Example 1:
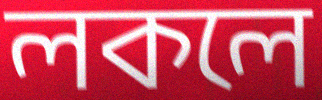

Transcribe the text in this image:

লকলে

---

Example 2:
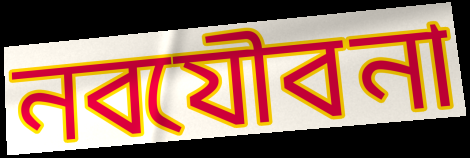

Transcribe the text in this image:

নবযৌবনা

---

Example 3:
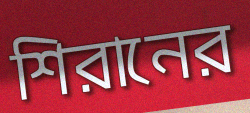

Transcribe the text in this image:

শিরানের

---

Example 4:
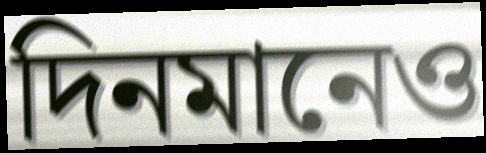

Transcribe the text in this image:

দিনমানেও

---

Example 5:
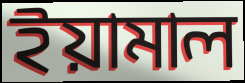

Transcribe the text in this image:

ইয়ামাল